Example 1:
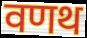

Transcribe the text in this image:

वणथ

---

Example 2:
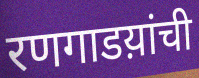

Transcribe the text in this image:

रणगाडय़ांची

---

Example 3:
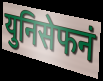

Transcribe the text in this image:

युनिसेफनं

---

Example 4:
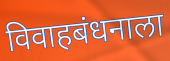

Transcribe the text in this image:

विवाहबंधनाला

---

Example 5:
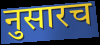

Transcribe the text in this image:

नुसारच